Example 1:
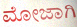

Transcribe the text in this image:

ಮೋಜಾಗಿ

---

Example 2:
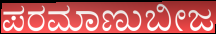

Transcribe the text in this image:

ಪರಮಾಣುಬೀಜ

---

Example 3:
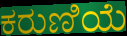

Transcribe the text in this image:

ಕರುಣಿಯೆ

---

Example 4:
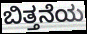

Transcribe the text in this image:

ಬಿತ್ತನೆಯ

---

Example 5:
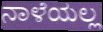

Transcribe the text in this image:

ನಾಳೆಯಲ್ಲ